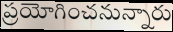
ప్రయోగించనున్నారు